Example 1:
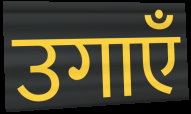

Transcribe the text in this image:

उगाएँ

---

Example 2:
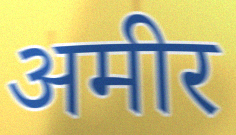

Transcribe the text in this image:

अमीर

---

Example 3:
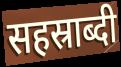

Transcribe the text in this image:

सहस्राब्दी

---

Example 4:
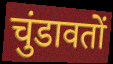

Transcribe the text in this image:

चुंडावतों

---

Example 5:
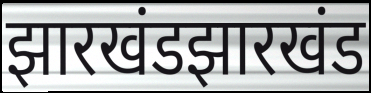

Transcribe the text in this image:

झारखंडझारखंड